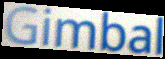
Gimbal